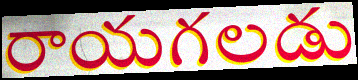
రాయగలడు